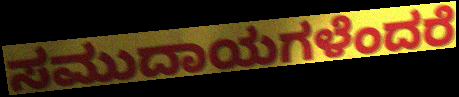
ಸಮುದಾಯಗಳೆಂದರೆ